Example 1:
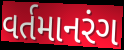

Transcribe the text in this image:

વર્તમાનરંગ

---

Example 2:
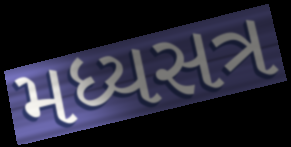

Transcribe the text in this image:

મધ્યસત્ર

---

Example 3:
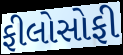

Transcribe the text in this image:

ફીલોસોફી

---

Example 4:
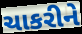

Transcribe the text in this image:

ચાકરીને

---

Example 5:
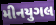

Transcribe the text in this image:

મીનયુગલ